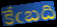
కేఁబది